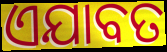
ଏଯାବତ